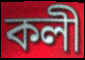
কলী